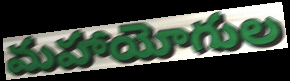
మహాయోగుల